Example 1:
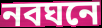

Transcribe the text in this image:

নবঘনে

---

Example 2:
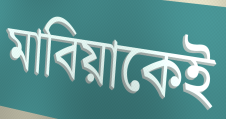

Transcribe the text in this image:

মাবিয়াকেই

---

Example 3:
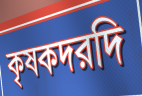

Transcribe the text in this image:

কৃষকদরদি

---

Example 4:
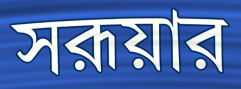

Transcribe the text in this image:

সরূয়ার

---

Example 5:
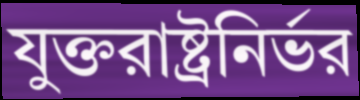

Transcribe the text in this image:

যুক্তরাষ্ট্রনির্ভর